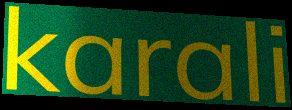
karali